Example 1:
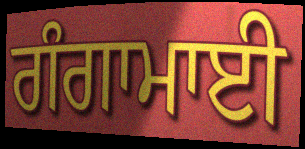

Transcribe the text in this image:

ਗੰਗਾਮਾਈ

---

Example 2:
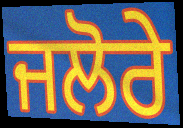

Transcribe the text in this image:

ਜਲੋਰੇ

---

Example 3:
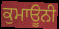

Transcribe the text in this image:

ਕੁਮਾਊਨੀ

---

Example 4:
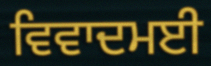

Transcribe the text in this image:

ਵਿਵਾਦਮਈ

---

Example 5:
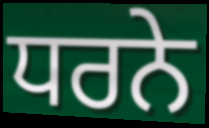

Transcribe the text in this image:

ਧਰਨੇ